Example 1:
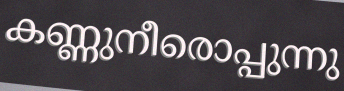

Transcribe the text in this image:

കണ്ണുനീരൊപ്പുന്നു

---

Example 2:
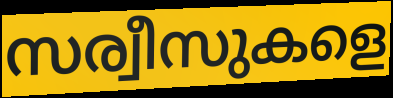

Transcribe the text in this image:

സര്വീസുകളെ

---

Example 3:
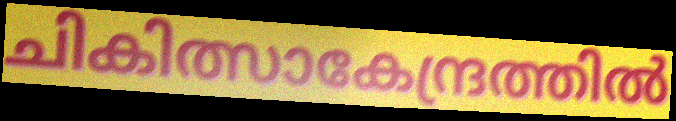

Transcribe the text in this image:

ചികിത്സാകേന്ദ്രത്തിൽ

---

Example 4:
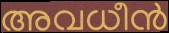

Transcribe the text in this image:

അവധീൻ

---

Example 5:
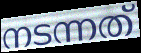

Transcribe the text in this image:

നടന്നത്